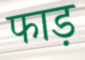
फाड़